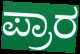
ಪ್ರಾರ